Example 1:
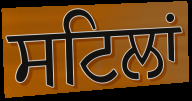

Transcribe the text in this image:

ਸਟਿਲਾਂ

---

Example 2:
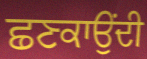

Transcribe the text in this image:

ਛਣਕਾਉਂਦੀ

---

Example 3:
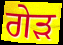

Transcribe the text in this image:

ਗੇੜ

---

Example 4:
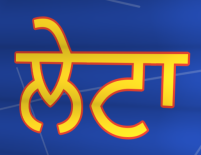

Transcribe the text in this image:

ਲੇਟਾ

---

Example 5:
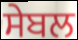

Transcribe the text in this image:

ਸੇਬਲ